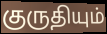
குருதியும்